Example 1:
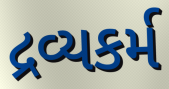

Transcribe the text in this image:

દ્રવ્યકર્મ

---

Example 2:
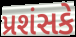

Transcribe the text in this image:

પ્રશંસકે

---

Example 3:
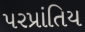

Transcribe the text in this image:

પરપ્રાંતિય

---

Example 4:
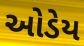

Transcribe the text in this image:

ઓડેય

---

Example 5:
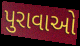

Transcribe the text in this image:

પુરાવાઓ